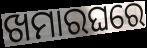
ଖମାରଘରେ